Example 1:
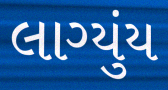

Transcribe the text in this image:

લાગ્યુંય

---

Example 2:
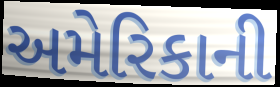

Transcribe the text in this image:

અમેરિકાની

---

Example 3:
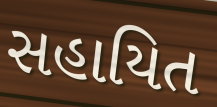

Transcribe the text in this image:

સહાયિત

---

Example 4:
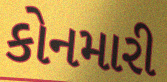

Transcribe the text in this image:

કોનમારી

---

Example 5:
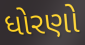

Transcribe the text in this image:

ધોરણો